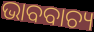
ଭାବବାଚ୍ୟ